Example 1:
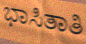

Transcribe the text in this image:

ಭಾಸಿತಾತಿ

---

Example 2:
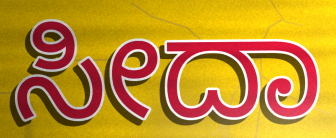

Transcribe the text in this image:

ಸೀದಾ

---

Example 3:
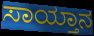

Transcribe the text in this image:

ಸಾಯ್ತಾನ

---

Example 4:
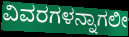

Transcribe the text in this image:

ವಿವರಗಳನ್ನಾಗಲೀ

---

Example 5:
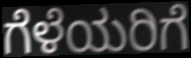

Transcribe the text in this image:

ಗೆಳೆಯರಿಗೆ